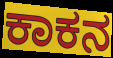
ಕಾಕನ